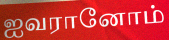
ஐவரானோம்